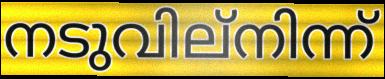
നടുവില്നിന്ന്